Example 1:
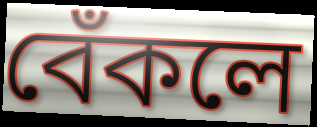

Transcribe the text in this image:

বেঁকলে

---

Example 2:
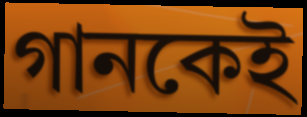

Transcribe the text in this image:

গানকেই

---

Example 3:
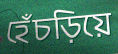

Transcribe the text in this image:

হেঁচড়িয়ে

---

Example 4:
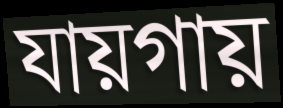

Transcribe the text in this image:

যায়গায়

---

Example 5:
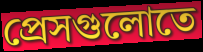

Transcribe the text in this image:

প্রেসগুলোতে